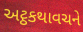
અટ્ઠકથાવચને